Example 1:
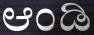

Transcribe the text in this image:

ಆಂಡಿ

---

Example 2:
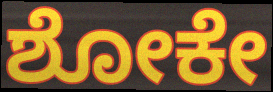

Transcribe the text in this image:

ಶೋಕೇ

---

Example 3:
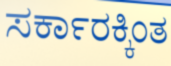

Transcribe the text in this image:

ಸರ್ಕಾರಕ್ಕಿಂತ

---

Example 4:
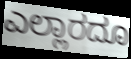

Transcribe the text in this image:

ಎಲ್ಲಾರದೂ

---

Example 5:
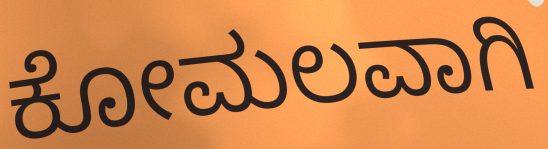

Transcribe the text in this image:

ಕೋಮಲವಾಗಿ